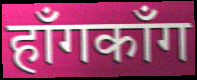
हाँगकाँग